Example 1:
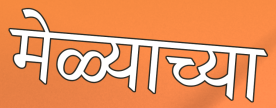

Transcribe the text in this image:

मेळ्याच्या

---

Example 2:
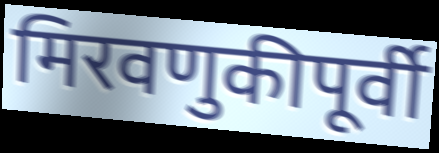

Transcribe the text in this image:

मिरवणुकीपूर्वी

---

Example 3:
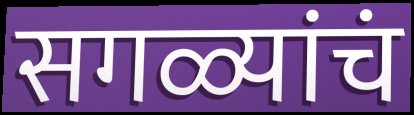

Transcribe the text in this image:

सगळ्यांचं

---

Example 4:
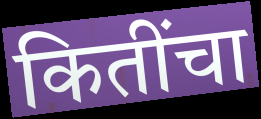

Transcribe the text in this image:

कितींचा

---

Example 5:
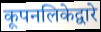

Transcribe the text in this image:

कूपनलिकेद्वारे